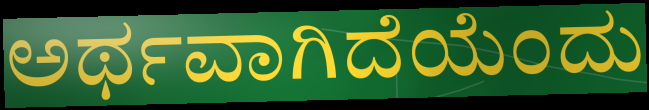
ಅರ್ಥವಾಗಿದೆಯೆಂದು